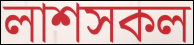
লাশসকল